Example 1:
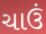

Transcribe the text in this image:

ચાઉં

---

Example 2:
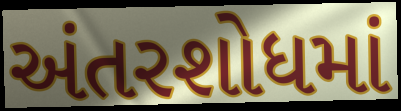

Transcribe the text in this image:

અંતરશોધમાં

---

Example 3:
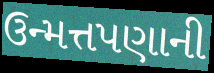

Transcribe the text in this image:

ઉન્મત્તપણાની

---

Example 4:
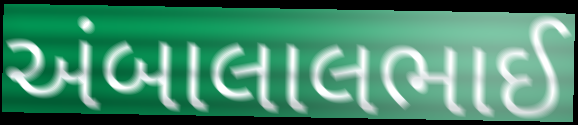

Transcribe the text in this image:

અંબાલાલભાઈ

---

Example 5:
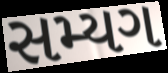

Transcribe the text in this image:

સમ્યગ